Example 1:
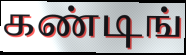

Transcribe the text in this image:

கண்டிங்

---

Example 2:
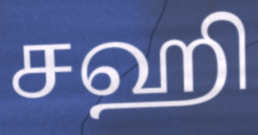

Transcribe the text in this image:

சஹி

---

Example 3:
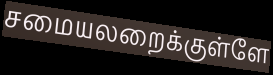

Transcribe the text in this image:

சமையலறைக்குள்ளே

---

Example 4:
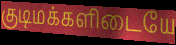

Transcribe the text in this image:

குடிமக்களிடையே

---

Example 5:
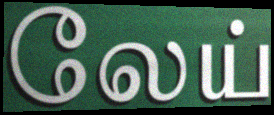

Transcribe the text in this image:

லேய்